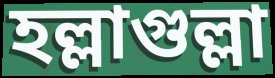
হল্লাগুল্লা